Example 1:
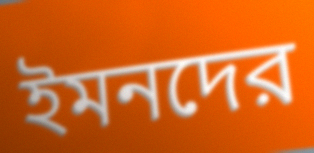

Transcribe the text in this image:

ইমনদের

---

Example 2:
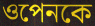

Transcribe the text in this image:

ওপেনকে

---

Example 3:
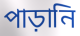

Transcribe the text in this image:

পাড়ানি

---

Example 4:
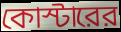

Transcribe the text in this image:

কোস্টারের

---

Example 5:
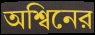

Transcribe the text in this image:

অশ্বিনের